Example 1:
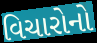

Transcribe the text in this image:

વિચારોનો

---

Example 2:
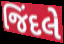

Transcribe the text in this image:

જિંદલે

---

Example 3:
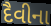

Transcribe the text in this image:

દૈવીના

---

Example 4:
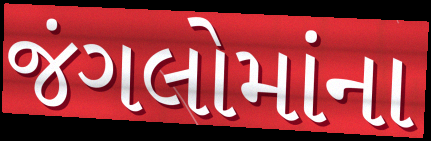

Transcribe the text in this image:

જંગલોમાંના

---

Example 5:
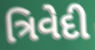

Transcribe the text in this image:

ત્રિવેદી